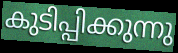
കുടിപ്പിക്കുന്നു